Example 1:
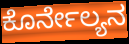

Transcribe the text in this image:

ಕೊರ್ನೇಲ್ಯನ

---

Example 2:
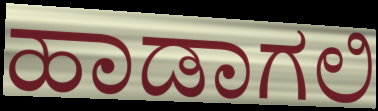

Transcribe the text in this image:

ಹಾಡಾಗಲಿ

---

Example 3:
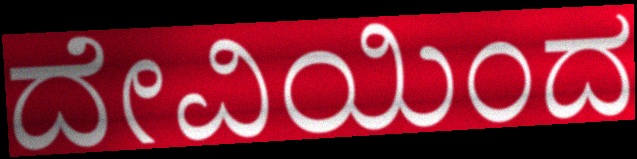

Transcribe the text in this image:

ದೇವಿಯಿಂದ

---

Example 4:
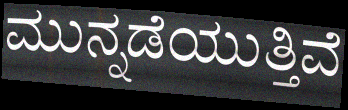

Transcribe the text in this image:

ಮುನ್ನಡೆಯುತ್ತಿವೆ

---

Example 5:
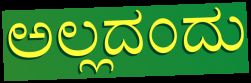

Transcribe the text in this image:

ಅಲ್ಲದಂದು